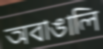
অবাঙালি